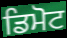
ਡਿਮੋਟ